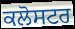
ਕਲੋਸਟਰ